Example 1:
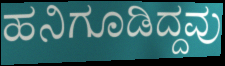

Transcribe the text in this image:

ಹನಿಗೂಡಿದ್ದವು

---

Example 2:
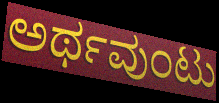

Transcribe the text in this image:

ಅರ್ಥವುಂಟು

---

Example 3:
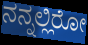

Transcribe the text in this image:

ನನ್ನಲ್ಲಿರೋ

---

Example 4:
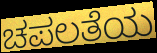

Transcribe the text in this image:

ಚಪಲತೆಯ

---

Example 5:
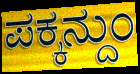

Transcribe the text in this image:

ಪಕ್ಕನ್ದುಂ